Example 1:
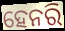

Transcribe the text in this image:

ହେନରି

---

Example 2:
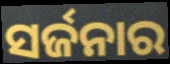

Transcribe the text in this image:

ସର୍ଜନାର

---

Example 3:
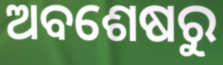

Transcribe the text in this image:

ଅବଶେଷରୁ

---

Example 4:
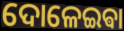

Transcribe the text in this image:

ଦୋଳେଇଵା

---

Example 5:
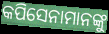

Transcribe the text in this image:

କପିସେନାମାନଙ୍କୁ